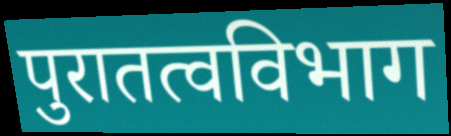
पुरातत्वविभाग